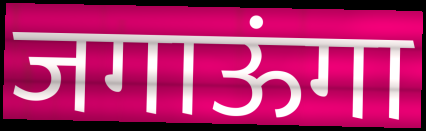
जगाऊंगा